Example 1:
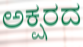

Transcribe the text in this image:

ಅಕ್ಷರದ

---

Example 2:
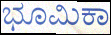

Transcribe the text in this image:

ಭೂಮಿಕಾ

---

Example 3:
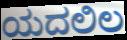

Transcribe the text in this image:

ಯದಲಿಲ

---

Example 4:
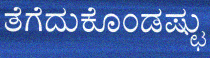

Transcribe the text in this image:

ತೆಗೆದುಕೊಂಡಷ್ಟು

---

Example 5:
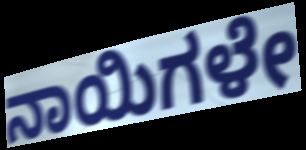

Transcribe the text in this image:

ನಾಯಿಗಳೇ